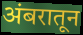
अंबरातून